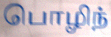
பொழிந்